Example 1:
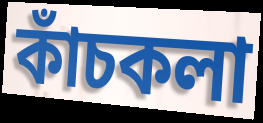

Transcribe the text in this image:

কাঁচকলা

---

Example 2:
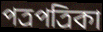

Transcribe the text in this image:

পত্রপত্রিকা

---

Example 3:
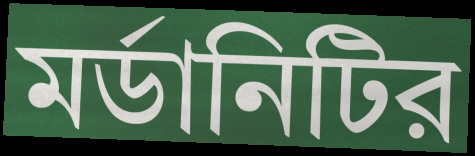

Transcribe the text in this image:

মর্ডানিটির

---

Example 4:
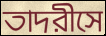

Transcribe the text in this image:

তাদরীসে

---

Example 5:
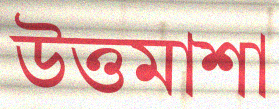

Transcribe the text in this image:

উত্তমাশা